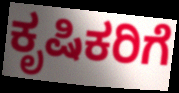
ಕೃಷಿಕರಿಗೆ